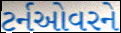
ટર્નઓવરને